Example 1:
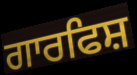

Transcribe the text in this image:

ਗਾਰਫਿਸ਼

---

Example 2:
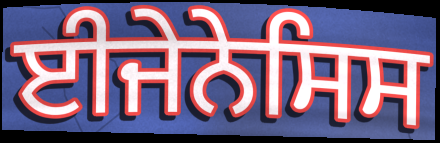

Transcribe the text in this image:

ਈਜੇਨੇਸਿਸ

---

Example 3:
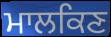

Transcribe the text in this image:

ਮਾਲਕਿਣ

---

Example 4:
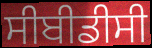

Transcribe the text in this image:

ਸੀਬੀਡੀਸੀ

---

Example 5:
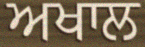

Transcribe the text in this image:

ਅਖਾਲ